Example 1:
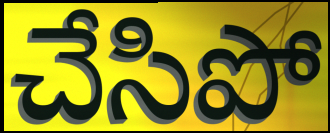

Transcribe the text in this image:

చేసిపో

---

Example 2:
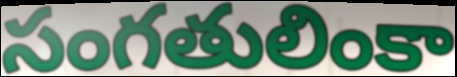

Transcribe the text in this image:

సంగతులింకా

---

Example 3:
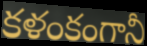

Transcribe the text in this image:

కళంకంగానీ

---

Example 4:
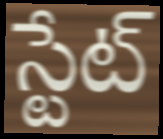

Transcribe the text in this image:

స్టేట్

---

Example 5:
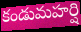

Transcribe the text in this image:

కండుమహర్షి